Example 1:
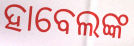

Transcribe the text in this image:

ହାବେଲଙ୍କ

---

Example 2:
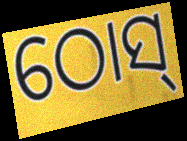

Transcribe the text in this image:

ଠୋସ୍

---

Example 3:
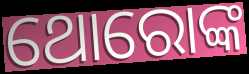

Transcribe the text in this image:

ଥୋରୋଙ୍କ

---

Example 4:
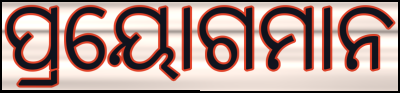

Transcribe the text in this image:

ପ୍ରୟୋଗମାନ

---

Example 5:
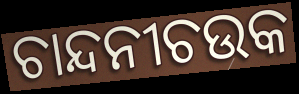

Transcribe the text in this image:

ଚାନ୍ଦନୀଚଉକ